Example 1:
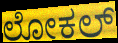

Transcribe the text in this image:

ಲೋಕಲ್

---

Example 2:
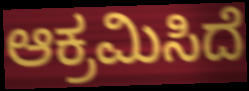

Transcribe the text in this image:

ಆಕ್ರಮಿಸಿದೆ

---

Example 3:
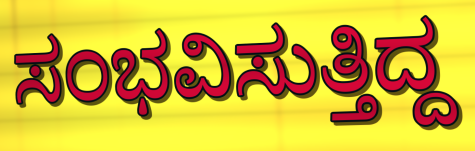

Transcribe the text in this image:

ಸಂಭವಿಸುತ್ತಿದ್ದ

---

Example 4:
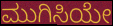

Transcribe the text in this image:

ಮುಗಿಸಿಯೇ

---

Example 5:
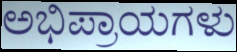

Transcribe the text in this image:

ಅಭಿಪ್ರಾಯಗಳು